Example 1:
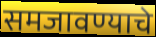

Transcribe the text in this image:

समजावण्याचे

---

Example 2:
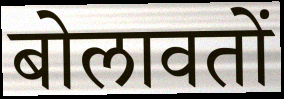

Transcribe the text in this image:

बोलावतों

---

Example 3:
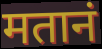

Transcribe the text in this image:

मतानं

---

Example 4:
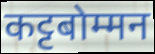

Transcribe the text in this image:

कट्टबोम्मन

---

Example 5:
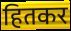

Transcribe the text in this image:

हितकर